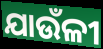
ଯାଉଁଳୀ